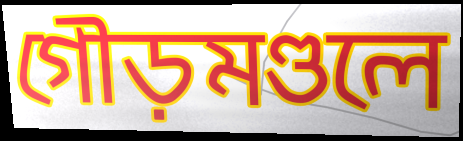
গৌড়মণ্ডলে